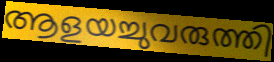
ആളയച്ചുവരുത്തി